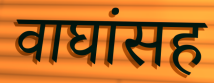
वाघांसह